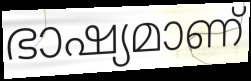
ഭാഷ്യമാണ്